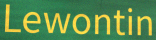
Lewontin